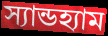
স্যান্ডহ্যাম